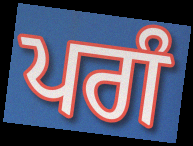
ਪਗੰ